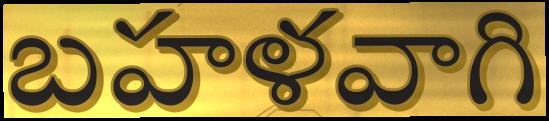
బహళవాగి